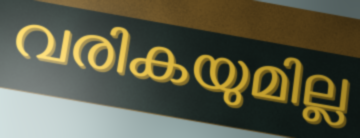
വരികയുമില്ല